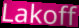
Lakoff